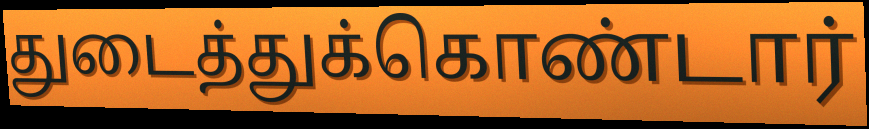
துடைத்துக்கொண்டார்